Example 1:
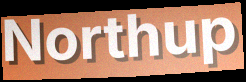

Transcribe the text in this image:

Northup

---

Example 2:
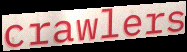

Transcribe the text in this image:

crawlers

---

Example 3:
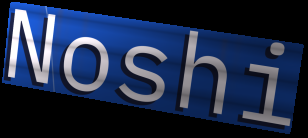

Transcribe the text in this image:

Noshi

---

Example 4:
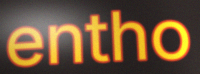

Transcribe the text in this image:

entho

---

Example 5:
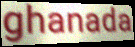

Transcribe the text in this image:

ghanada